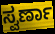
ಸ್ವರ್ಣಾ